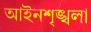
আইনশৃঙ্খলা